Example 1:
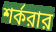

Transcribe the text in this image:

শর্করার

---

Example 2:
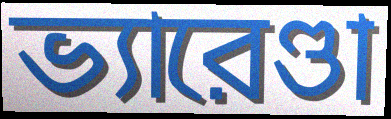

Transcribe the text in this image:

ভ্যারেণ্ডা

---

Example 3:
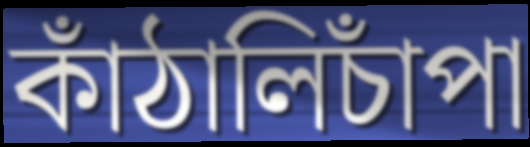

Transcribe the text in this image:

কাঁঠালিচাঁপা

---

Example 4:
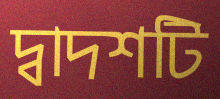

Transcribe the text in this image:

দ্বাদশটি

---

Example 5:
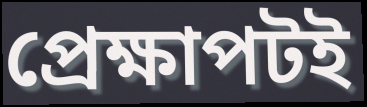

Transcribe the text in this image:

প্রেক্ষাপটই